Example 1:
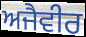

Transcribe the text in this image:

ਅਜੈਵੀਰ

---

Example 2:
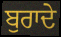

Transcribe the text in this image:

ਬੁਰਾਦੇ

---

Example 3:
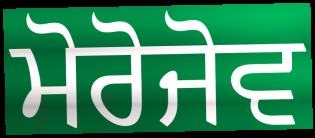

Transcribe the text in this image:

ਮੋਰੋਜੋਵ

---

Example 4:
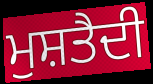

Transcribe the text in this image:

ਮੁਸ਼ਤੈਦੀ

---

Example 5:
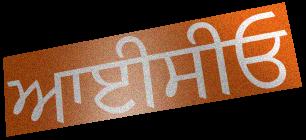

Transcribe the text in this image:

ਆਈਸੀਓ